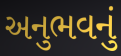
અનુભવનું